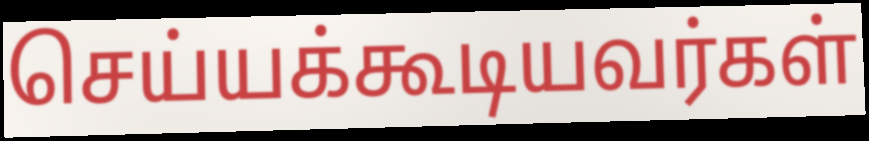
செய்யக்கூடியவர்கள்